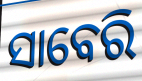
ସାବେରି